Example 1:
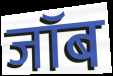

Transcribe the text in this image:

जॉब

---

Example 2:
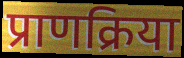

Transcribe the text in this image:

प्राणक्रिया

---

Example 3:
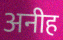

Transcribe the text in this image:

अनीह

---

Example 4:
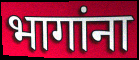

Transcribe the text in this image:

भागांना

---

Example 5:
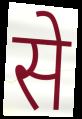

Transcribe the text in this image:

से